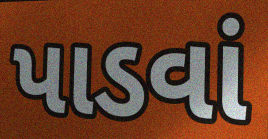
પાડવાં